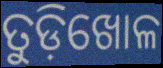
ତୁଡ଼ିଖୋଳ